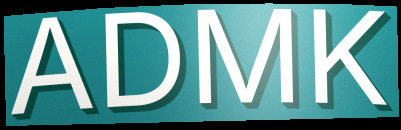
ADMK